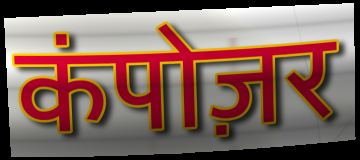
कंपोज़र